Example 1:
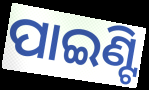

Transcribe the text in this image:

ପାଇଣ୍ଟି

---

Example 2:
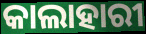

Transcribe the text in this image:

କାଲାହାରୀ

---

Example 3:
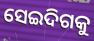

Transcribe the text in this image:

ସେଇଦିଗକୁ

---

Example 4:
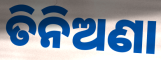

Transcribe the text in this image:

ତିନିଅଣା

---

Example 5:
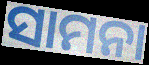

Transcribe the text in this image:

ସାମନା